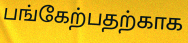
பங்கேற்பதற்காக